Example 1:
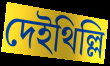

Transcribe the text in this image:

দেইথিল্লি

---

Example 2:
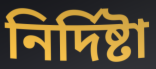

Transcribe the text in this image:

নির্দিষ্টা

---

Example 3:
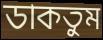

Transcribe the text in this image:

ডাকতুম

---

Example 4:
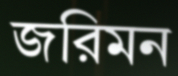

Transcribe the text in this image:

জরিমন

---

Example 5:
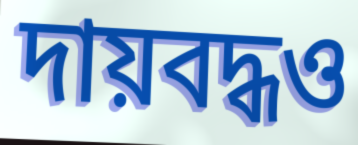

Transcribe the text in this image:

দায়বদ্ধও